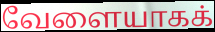
வேளையாகக்